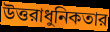
উত্তরাধুনিকতার